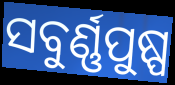
ସବୁର୍ଣ୍ଣପୁଷ୍ପ